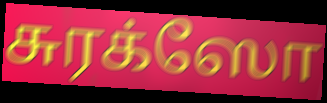
சுரக்ஸோ